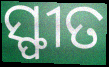
ସ୍ଫୀତ